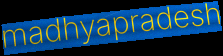
madhyapradesh